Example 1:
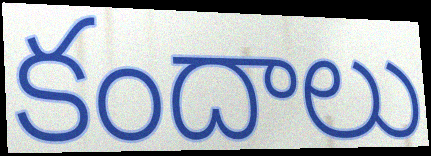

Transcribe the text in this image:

కందాలు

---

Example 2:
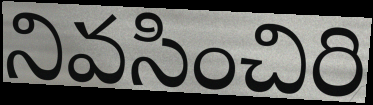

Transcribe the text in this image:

నివసించిరి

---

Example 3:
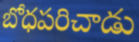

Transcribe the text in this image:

బోధపరిచాడు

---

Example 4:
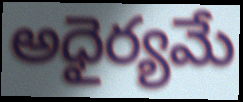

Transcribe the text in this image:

అధైర్యమే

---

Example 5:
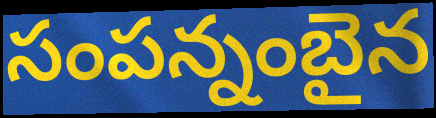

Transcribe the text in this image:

సంపన్నంబైన